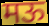
मऊ